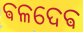
ଵଳଦେଵ